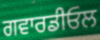
ਗਵਾਰਡੀਓਲ